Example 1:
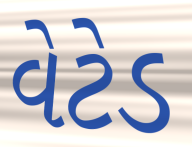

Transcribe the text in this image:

વેટેડ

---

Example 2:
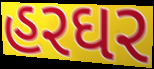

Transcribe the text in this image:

હરઘર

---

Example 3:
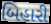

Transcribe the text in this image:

બિહારી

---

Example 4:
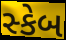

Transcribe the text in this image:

સ્કેબ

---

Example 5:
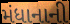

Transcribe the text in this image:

મંધાનાની